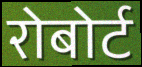
रोबोर्ट